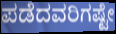
ಪಡೆದವರಿಗಷ್ಟೇ